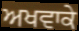
ਅਖਵਾਕੇ